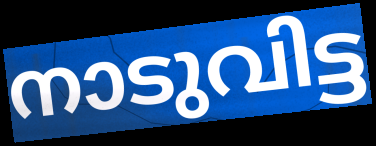
നാടുവിട്ട